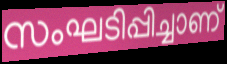
സംഘടിപ്പിച്ചാണ്